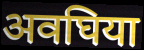
अवघिया